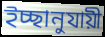
ইচ্ছানুযায়ী